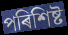
পৰিশিষ্ট